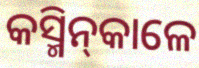
କସ୍ମିନ୍‍କାଳେ